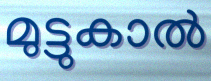
മുട്ടുകാൽ